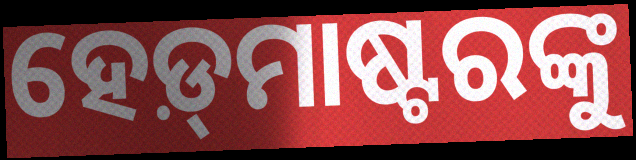
ହେଡ଼୍‌ମାଷ୍ଟରଙ୍କୁ